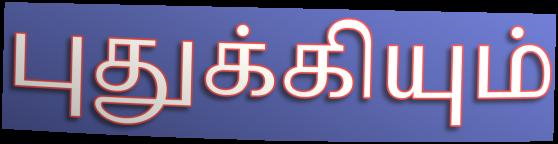
புதுக்கியும்